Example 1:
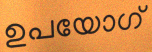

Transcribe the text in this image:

ഉപയോഗ്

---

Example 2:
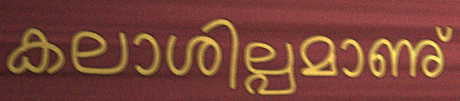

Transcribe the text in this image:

കലാശില്പമാണു്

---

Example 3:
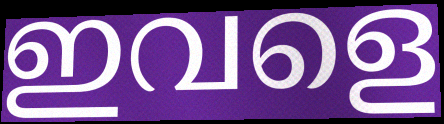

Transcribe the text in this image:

ഇവളെ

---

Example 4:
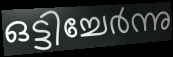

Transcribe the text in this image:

ഒട്ടിച്ചേർന്നു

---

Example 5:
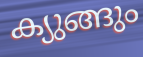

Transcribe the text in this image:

ക്യുങ്ങും